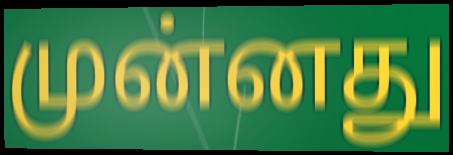
முன்னது